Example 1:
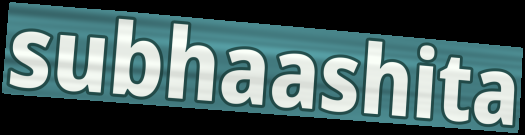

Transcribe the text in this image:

subhaashita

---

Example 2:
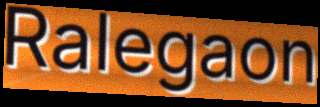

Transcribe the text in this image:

Ralegaon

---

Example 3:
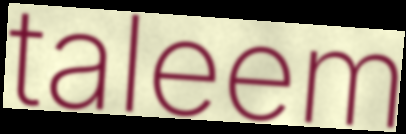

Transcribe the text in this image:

taleem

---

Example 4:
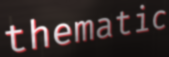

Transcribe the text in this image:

thematic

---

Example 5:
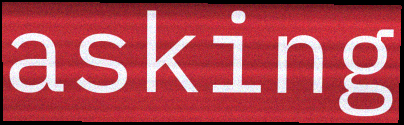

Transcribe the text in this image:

asking